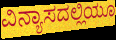
ವಿನ್ಯಾಸದಲ್ಲಿಯೂ